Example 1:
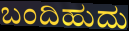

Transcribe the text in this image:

ಬಂದಿಹುದು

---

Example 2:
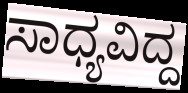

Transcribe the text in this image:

ಸಾಧ್ಯವಿದ್ದ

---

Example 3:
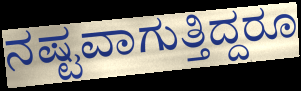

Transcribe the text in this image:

ನಷ್ಟವಾಗುತ್ತಿದ್ದರೂ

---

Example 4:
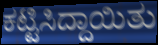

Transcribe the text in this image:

ಕಟ್ಟಿಸಿದ್ದಾಯಿತು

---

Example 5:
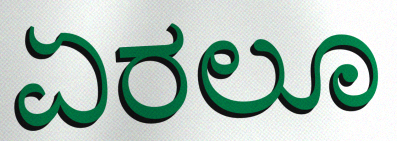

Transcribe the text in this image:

ಏರಲೂ